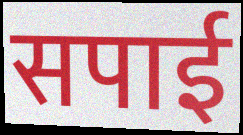
सपाई